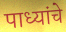
पाध्यांचे